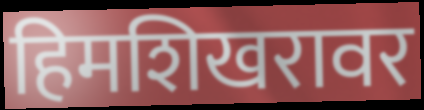
हिमशिखरावर